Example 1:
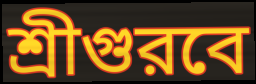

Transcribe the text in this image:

শ্রীগুরবে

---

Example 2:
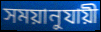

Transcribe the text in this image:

সময়ানুযায়ী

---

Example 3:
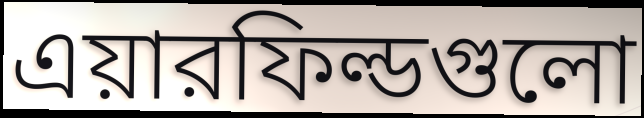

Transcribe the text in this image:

এয়ারফিল্ডগুলো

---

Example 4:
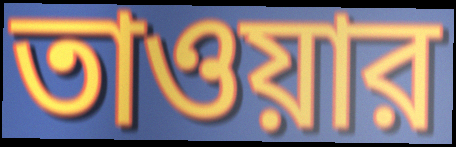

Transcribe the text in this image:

তাওয়ার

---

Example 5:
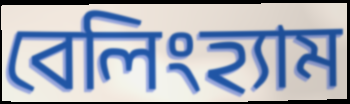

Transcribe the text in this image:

বেলিংহ্যাম